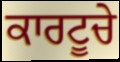
ਕਾਰਟੂਚੇ